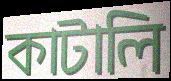
কাটালি